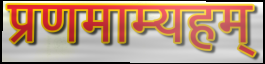
प्रणमाम्यहम्